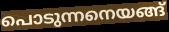
പൊടുന്നനെയങ്ങ്